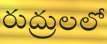
రుద్రులలో